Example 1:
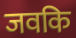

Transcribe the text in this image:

जवकि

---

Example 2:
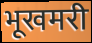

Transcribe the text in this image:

भूखमरी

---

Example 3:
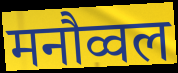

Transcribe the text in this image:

मनौव्वल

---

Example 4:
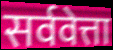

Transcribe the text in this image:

सर्ववेत्ता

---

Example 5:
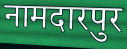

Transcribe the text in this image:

नामदारपुर